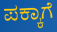
ಪಕ್ಕಾಗೆ